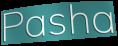
Pasha